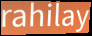
rahilay